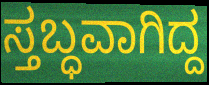
ಸ್ತಬ್ಧವಾಗಿದ್ದ